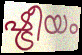
ഷ്ട്രീയം